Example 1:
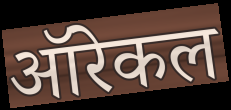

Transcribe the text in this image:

ऑरेकल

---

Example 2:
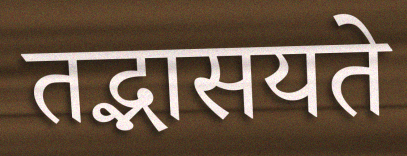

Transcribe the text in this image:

तद्भासयते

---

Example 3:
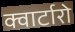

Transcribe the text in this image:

क्वार्टारो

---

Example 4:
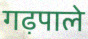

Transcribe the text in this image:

गढ़पाले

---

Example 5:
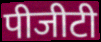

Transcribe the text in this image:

पीजीटी